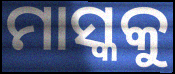
ମାସ୍କକୁ